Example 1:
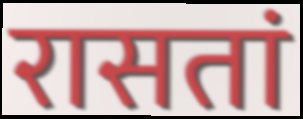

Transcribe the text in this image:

रासतां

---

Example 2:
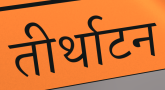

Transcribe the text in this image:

तीर्थाटन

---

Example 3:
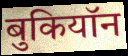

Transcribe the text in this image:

बुकियॉन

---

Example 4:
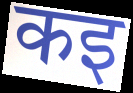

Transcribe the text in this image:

कइ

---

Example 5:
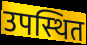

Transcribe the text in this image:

उपस्थित